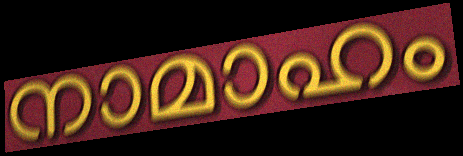
നാമാഹം